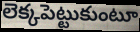
లెక్కపెట్టుకుంటూ